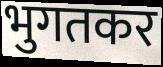
भुगतकर